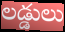
లడ్డులు